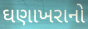
ઘણાખરાનો